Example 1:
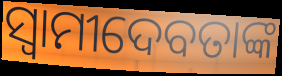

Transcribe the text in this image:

ସ୍ୱାମୀଦେବତାଙ୍କ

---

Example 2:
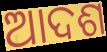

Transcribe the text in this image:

ଆଦଶ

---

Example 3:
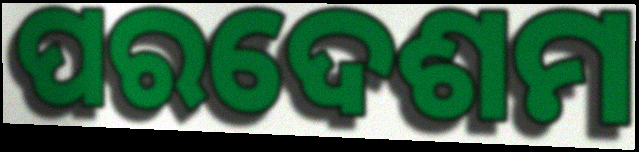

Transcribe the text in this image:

ପରଦେଶମ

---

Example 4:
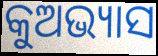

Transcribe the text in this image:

କୁଅଭ୍ୟାସ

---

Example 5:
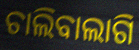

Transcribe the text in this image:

ଚାଲିବାଲାଗି